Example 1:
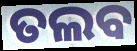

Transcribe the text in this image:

ତଲବ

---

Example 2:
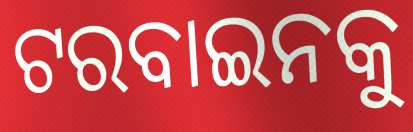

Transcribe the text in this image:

ଟରବାଇନକୁ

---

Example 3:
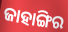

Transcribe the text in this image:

ଜାହାଙ୍ଗିର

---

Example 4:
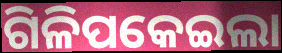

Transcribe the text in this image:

ଗିଳିପକେଇଲା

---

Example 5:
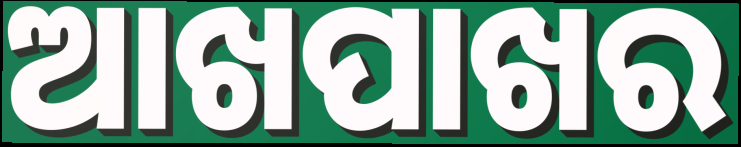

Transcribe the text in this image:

ଆଖପାଖର